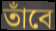
তাঁবে